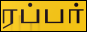
ரப்பர்